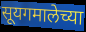
सूयगमालेच्या